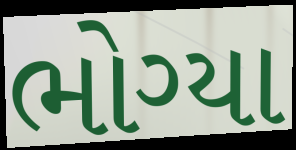
ભોગ્યા